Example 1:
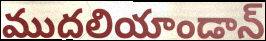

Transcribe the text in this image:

ముదలియాండాన్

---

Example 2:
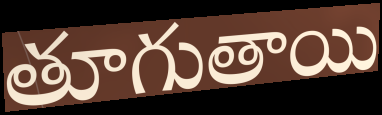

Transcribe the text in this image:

తూగుతాయి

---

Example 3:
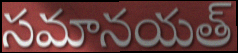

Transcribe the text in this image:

సమానయత్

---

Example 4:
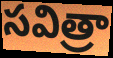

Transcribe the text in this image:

సవిత్రా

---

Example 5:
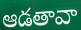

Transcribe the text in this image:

ఆడతావా